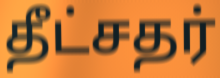
தீட்சதர்